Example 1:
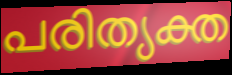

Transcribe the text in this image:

പരിത്യക്ത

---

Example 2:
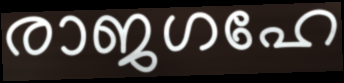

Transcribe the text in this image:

രാജഗഹേ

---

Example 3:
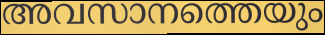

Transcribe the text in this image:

അവസാനത്തെയും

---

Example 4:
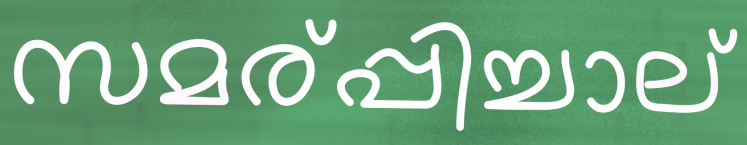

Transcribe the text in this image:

സമര്പ്പിച്ചാല്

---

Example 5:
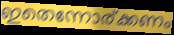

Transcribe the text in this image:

ഇതെന്നോര്ക്കണം